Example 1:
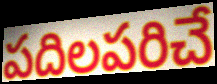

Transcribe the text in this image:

పదిలపరిచే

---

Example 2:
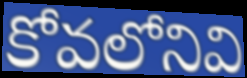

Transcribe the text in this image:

కోవలోనివి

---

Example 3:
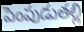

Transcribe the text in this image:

పెంపుడుతల్లి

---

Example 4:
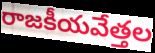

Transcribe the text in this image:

రాజకీయవేత్తల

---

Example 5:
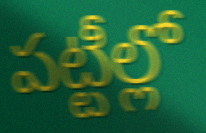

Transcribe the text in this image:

పట్టీల్లో